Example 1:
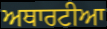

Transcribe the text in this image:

ਅਥਾਰਟੀਆ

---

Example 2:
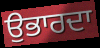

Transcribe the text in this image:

ਉਭਾਰਦਾ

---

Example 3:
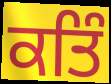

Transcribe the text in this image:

ਕਤਿੰ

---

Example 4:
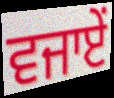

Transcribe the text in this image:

ਵਜਾਏਂ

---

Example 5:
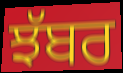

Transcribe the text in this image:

ਝੱਬਰ